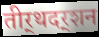
तीर्थदर्शन